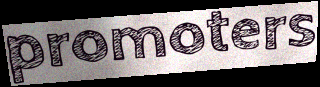
promoters